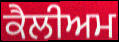
ਕੈਲੀਅਮ